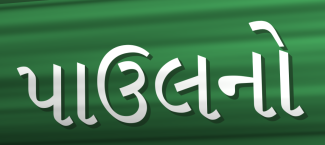
પાઉલનો